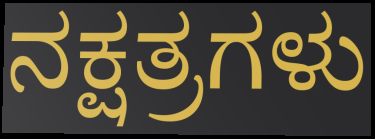
ನಕ್ಷತ್ರಗಳು